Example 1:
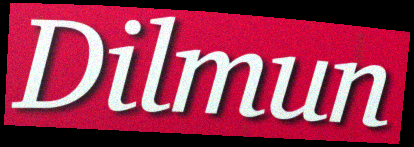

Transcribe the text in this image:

Dilmun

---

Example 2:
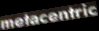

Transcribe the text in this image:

metacentric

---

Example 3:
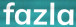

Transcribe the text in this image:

fazla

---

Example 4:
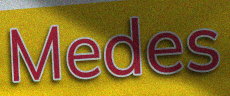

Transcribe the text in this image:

Medes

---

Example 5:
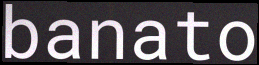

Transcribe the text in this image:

banato